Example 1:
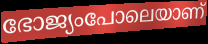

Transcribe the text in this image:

ഭോജ്യംപോലെയാണ്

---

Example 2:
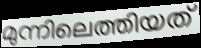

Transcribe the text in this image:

മുന്നിലെത്തിയത്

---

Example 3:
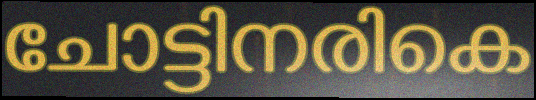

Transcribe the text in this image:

ചോട്ടിനരികെ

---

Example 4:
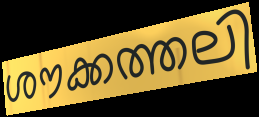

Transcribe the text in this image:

ശൗക്കത്തലി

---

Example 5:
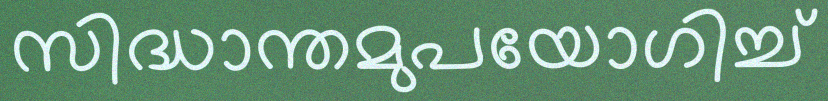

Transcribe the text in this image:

സിദ്ധാന്തമുപയോഗിച്ച്